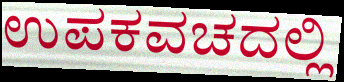
ಉಪಕವಚದಲ್ಲಿ